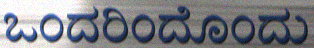
ಒಂದರಿಂದೊಂದು